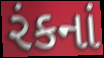
રંકનાં